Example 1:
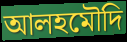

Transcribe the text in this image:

আলহমৌদি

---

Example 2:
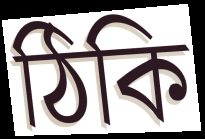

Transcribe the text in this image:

ঠিকি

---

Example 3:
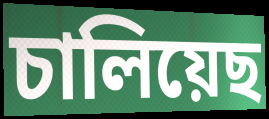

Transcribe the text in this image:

চালিয়েছ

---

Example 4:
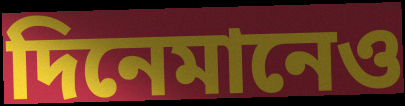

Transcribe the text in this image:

দিনেমানেও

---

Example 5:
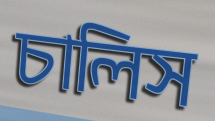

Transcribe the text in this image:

চালিস